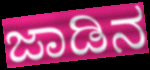
ಜಾಡಿನ